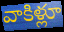
వాకిళ్లూ